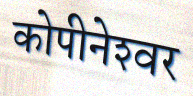
कोपीनेश्वर